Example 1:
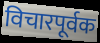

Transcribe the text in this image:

विचारपूर्वक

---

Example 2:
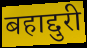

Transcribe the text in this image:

बहाद्दुरी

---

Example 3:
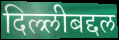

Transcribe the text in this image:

दिल्लीबद्दल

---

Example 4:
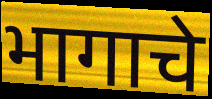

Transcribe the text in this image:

भागाचे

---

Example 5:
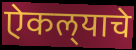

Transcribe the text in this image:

ऐकल्याचे